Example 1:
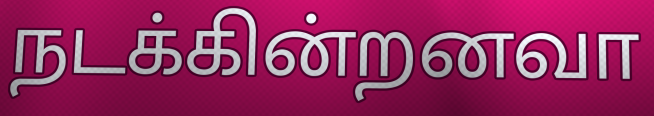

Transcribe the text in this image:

நடக்கின்றனவா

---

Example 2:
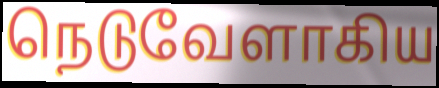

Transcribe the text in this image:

நெடுவேளாகிய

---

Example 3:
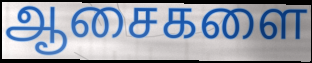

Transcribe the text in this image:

ஆசைகளை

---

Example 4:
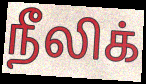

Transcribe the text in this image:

நீலிக்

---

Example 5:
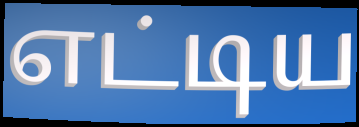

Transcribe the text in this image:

எட்டிய